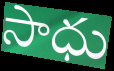
సాధు